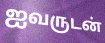
ஐவருடன்